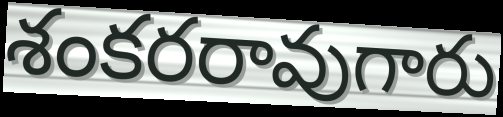
శంకరరావుగారు